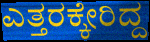
ಎತ್ತರಕ್ಕೇರಿದ್ದ